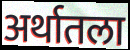
अर्थातला